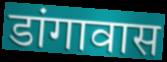
डांगावास